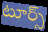
టూర్స్